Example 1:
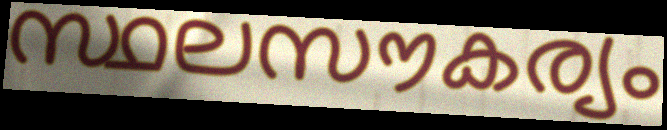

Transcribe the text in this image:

സ്ഥലസൗകര്യം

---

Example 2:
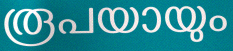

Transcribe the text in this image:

രൂപയായും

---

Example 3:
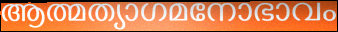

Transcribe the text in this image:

ആത്മത്യാഗമനോഭാവം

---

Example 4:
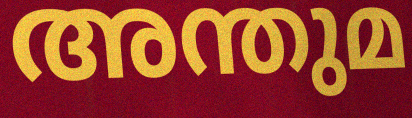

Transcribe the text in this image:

അന്തുമ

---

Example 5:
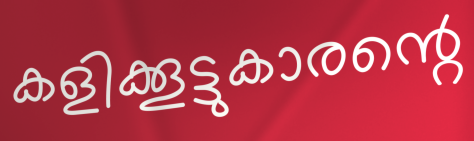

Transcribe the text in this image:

കളിക്കൂട്ടുകാരന്റെ